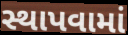
સ્થાપવામાં